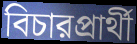
বিচারপ্রার্থী